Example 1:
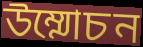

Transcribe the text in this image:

উম্মোচন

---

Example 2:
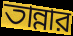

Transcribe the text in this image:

তান্নার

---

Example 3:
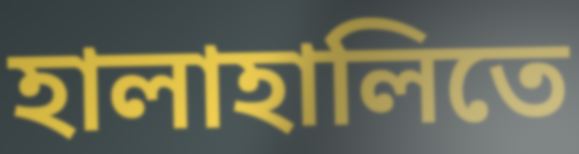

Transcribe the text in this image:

হালাহালিতে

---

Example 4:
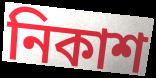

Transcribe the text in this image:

নিকাশ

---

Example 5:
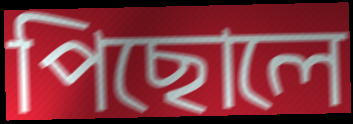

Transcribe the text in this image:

পিছোলে